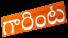
గారింట